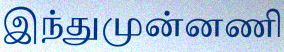
இந்துமுன்னணி